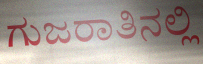
ಗುಜರಾತಿನಲ್ಲಿ